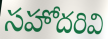
సహోదరివి